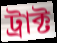
ট্রাক্ট